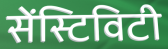
सेंस्टिविटी